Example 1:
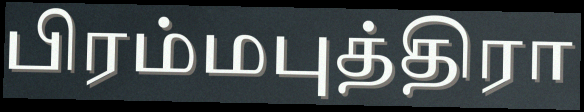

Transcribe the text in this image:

பிரம்மபுத்திரா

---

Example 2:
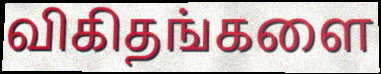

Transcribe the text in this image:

விகிதங்களை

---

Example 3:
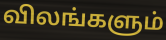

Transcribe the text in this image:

விலங்களும்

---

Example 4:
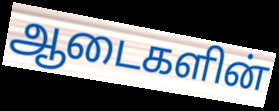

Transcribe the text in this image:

ஆடைகளின்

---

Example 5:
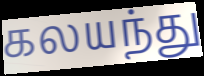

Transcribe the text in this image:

கலயந்து